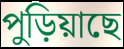
পুড়িয়াছে